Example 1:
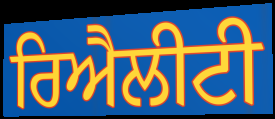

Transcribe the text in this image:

ਰਿਐਲੀਟੀ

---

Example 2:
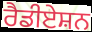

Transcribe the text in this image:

ਰੈਡੀਏਸ਼ਨ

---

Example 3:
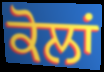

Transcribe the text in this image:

ਕੋਲਾਂ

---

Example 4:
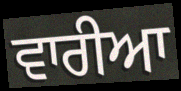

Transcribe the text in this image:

ਵਾਰੀਆ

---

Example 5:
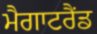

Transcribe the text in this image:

ਮੈਗਾਟਰੈਂਡ